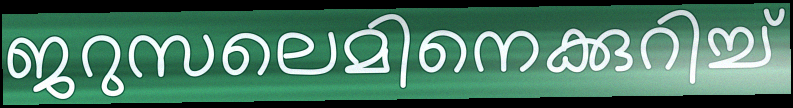
ജറുസലെമിനെക്കുറിച്ച്